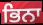
ਭਿਨਾ